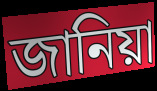
জানিয়া